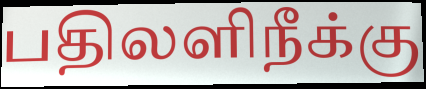
பதிலளிநீக்கு